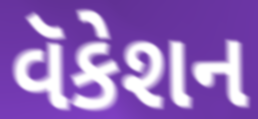
વૅકેશન